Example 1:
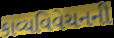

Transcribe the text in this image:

કાવ્યવિવેચનની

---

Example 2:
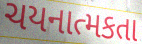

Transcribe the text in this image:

ચયનાત્મકતા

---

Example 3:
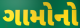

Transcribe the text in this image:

ગામોનો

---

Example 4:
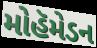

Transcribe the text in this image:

મોહૅમેડન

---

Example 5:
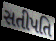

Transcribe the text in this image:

સતીપતિ